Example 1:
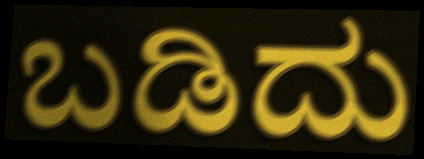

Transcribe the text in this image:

ಬಡಿದು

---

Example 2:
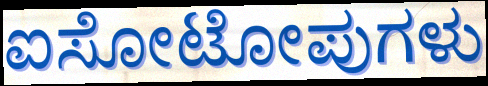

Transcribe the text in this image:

ಐಸೋಟೋಪುಗಳು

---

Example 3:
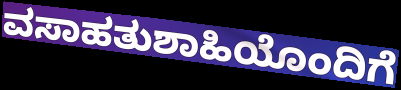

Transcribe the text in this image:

ವಸಾಹತುಶಾಹಿಯೊಂದಿಗೆ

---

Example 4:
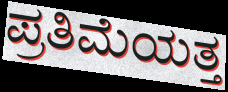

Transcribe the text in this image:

ಪ್ರತಿಮೆಯತ್ತ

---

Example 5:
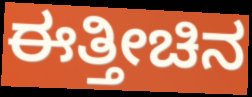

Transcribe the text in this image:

ಈತ್ತೀಚಿನ